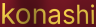
konashi